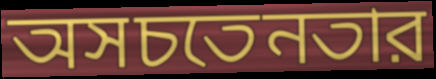
অসচতেনতার